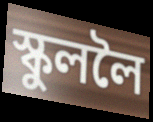
স্কুললৈ